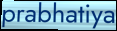
prabhatiya